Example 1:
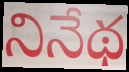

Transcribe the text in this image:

నినేథ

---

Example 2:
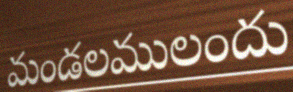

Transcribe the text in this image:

మండలములందు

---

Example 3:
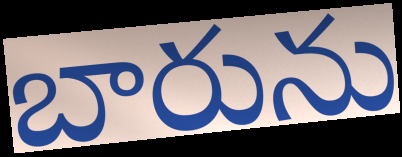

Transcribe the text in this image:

బారును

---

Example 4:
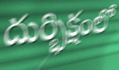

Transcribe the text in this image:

దుర్భిక్షంలో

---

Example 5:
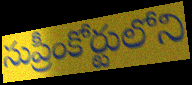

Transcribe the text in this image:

సుప్రీంకోర్టులోని